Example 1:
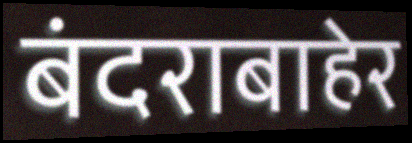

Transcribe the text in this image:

बंदराबाहेर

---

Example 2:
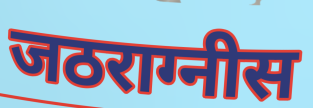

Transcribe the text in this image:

जठराग्नीस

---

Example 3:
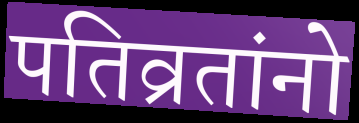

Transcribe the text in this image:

पतिव्रतांनो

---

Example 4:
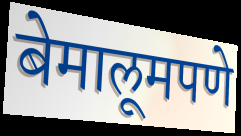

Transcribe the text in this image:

बेमालूमपणे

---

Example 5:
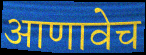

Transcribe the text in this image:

आणावेच